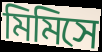
মিমিসে